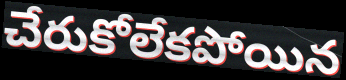
చేరుకోలేకపోయిన